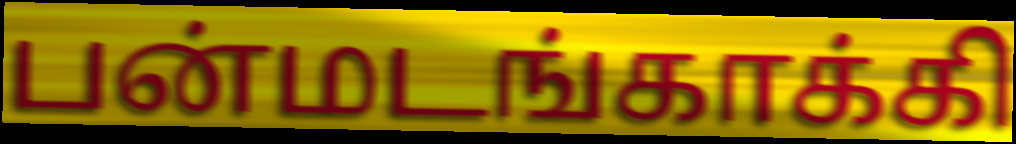
பன்மடங்காக்கி